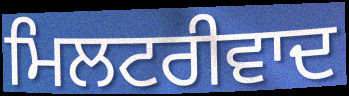
ਮਿਲਟਰੀਵਾਦ